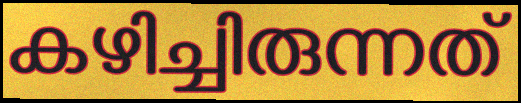
കഴിച്ചിരുന്നത്